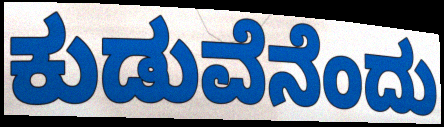
ಕುಡುವೆನೆಂದು